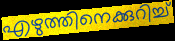
എഴുത്തിനെക്കുറിച്ച്